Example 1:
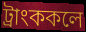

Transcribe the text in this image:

ট্রাংককলে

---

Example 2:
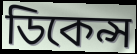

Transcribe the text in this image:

ডিকেন্স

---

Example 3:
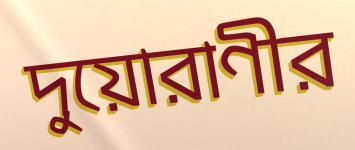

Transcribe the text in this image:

দুয়োরাণীর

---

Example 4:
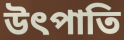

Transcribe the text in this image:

উৎপাতি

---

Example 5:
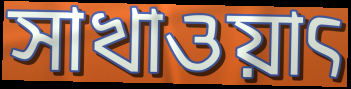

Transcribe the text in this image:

সাখাওয়াৎ